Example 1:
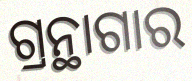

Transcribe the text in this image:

ଗ୍ରନ୍ଥାଗାର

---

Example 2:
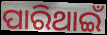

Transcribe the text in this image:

ପାରିଥାଇଁ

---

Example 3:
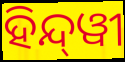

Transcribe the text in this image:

ହିନ୍ଦ୍‍ୱୀ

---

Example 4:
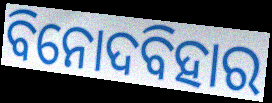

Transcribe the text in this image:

ବିନୋଦବିହାର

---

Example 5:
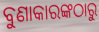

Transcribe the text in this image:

ବୁଣାକାରଙ୍କଠାରୁ